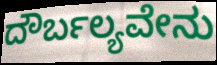
ದೌರ್ಬಲ್ಯವೇನು